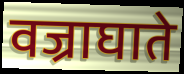
वज्राघाते